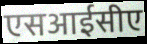
एसआईसीए